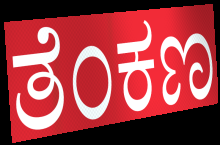
ತೆಂಕಣ